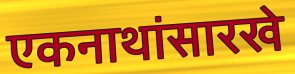
एकनाथांसारखे